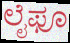
ಲೈಫೂ